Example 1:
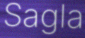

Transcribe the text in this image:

Sagla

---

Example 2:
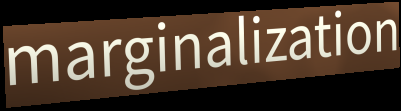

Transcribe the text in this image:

marginalization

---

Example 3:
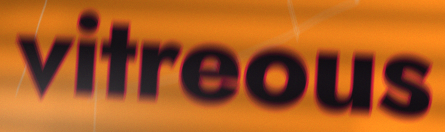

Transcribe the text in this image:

vitreous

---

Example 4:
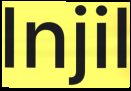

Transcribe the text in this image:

Injil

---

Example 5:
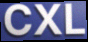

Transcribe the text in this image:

CXL